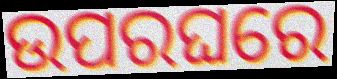
ଉପରଘରେ